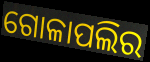
ଗୋଳାପଲିର